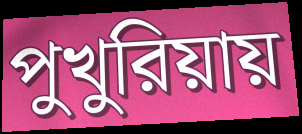
পুখুরিয়ায়